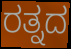
ರತ್ನದ